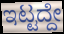
ಇಟ್ಟದ್ದೇ